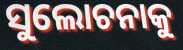
ସୁଲୋଚନାକୁ